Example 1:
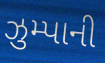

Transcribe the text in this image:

ઝુમ્પાની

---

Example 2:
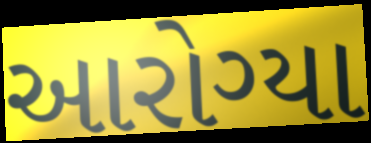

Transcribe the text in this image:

આરોગ્યા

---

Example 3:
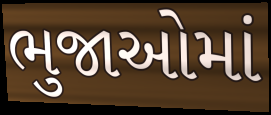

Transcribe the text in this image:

ભુજાઓમાં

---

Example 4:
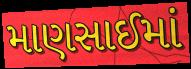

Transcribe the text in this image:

માણસાઈમાં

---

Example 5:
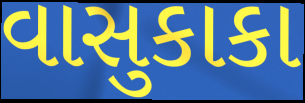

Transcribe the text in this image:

વાસુકાકા